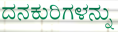
ದನಕುರಿಗಳನ್ನು